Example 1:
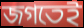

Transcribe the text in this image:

জগতেই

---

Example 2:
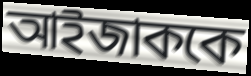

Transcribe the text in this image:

আইজাককে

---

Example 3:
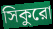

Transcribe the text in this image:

সিকুরো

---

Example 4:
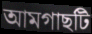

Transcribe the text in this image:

আমগাছটি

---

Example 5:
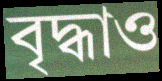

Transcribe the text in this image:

বৃদ্ধাও